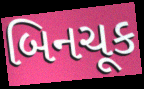
બિનચૂક